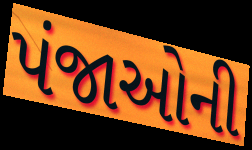
પંજાઓની